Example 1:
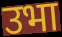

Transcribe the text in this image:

उभा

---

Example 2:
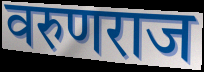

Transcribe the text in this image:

वरुणराज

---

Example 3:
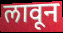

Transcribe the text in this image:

लावून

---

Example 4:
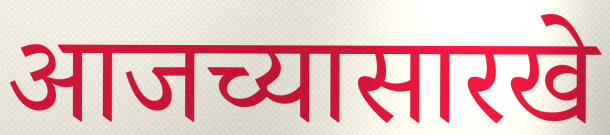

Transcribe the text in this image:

आजच्यासारखे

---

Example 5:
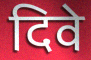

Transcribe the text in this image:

दिवे